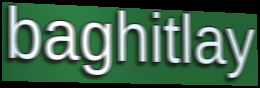
baghitlay